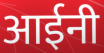
आईनी